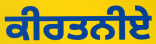
ਕੀਰਤਨੀਏ